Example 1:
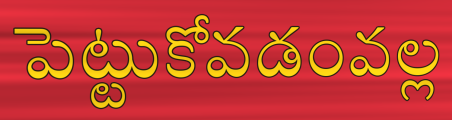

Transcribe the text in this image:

పెట్టుకోవడంవల్ల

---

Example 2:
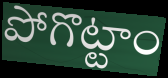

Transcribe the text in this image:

పోగొట్టాం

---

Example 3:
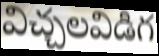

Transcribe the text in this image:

విచ్చలవిడిగ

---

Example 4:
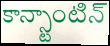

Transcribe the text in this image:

కాన్స్టాంటిన్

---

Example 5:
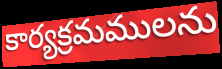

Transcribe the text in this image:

కార్యక్రమములను